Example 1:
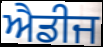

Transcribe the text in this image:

ਐਡੀਜ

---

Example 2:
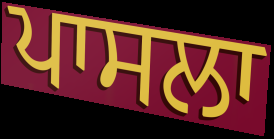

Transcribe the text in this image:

ਪਾਸਲਾ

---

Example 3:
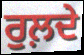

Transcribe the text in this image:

ਰੁਲ਼ਦੇ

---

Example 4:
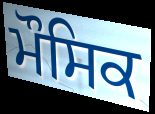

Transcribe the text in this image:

ਮੌਸਿਕ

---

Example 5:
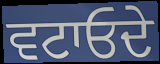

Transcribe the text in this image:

ਵਟਾਓਦੇ